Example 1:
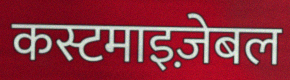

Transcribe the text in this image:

कस्टमाइज़ेबल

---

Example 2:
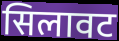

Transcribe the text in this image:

सिलावट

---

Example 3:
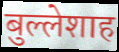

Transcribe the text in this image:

बुल्लेशाह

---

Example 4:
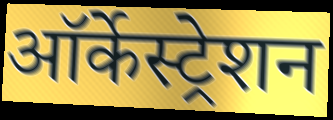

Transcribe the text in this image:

ऑर्केस्ट्रेशन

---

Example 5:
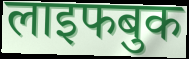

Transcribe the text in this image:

लाइफबुक